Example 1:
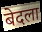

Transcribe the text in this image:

बेदला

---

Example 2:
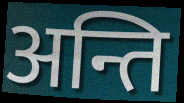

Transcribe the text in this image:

अन्ति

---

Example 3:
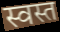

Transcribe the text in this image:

स्वस्त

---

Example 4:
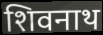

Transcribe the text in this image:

शिवनाथ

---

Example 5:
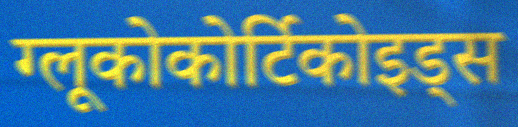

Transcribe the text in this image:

ग्लूकोकोर्टिकोइड्स